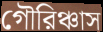
গৌরিঞ্চাস